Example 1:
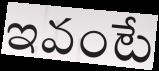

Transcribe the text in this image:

ఇవంటే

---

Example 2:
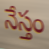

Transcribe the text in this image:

నేస్తం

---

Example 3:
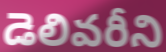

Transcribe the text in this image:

డెలివరీని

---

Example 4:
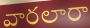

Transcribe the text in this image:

వారలారా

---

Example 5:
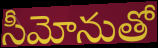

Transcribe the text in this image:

సీమోనుతో